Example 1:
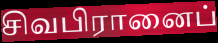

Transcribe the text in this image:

சிவபிரானைப்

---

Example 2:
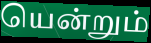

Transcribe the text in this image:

யென்றும்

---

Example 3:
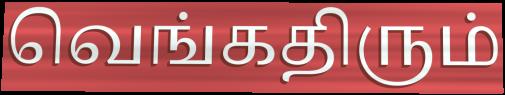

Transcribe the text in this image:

வெங்கதிரும்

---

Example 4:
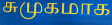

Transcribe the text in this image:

சுமுகமாக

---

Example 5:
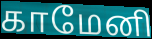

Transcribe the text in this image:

காமேனி